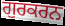
ਗੁਰਕਰਨ